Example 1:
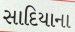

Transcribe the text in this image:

સાદિયાના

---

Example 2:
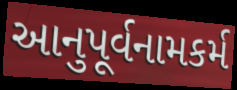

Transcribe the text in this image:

આનુપૂર્વનામકર્મ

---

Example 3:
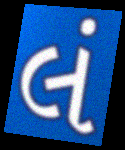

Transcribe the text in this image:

લં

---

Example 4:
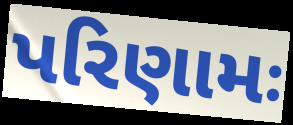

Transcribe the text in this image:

પરિણામઃ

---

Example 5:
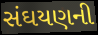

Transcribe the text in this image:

સંઘયણની